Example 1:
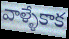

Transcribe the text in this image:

వాళ్ళేకాక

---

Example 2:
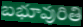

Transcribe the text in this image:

బభూవురితి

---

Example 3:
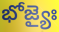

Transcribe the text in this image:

భోజ్యైః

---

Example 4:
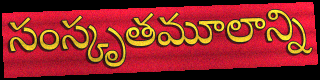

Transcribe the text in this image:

సంస్కృతమూలాన్ని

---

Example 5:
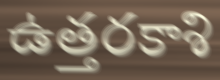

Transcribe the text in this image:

ఉత్తరకాశి